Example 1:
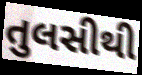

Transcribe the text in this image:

તુલસીથી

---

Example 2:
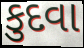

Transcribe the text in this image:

કુદવા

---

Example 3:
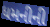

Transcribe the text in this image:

ધમનીની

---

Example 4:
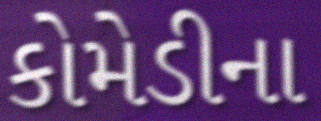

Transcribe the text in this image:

કોમેડીના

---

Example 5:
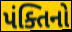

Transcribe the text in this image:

પંક્તિનો